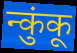
न्कुंकू